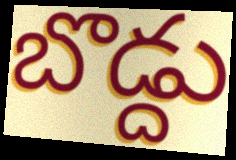
బొడ్దు